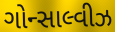
ગોન્સાલ્વીઝ